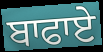
ਬਾਫਾਏ